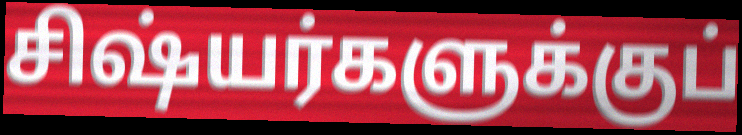
சிஷ்யர்களுக்குப்